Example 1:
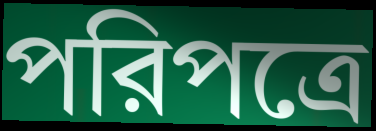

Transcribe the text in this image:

পরিপত্রে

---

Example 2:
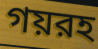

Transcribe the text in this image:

গয়রহ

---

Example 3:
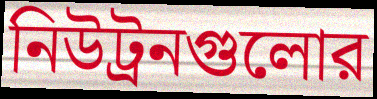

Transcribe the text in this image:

নিউট্রনগুলোর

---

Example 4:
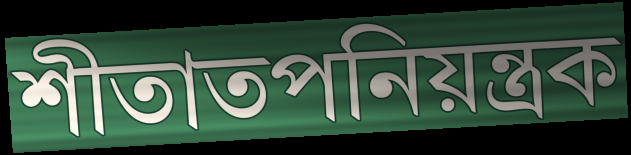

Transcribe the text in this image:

শীতাতপনিয়ন্ত্রক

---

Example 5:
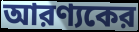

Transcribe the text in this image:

আরণ্যকের